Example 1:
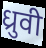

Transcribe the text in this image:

ध्रुवी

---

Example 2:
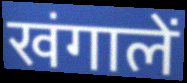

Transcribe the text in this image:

खंगालें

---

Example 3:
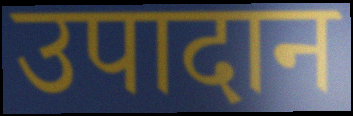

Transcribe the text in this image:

उपादान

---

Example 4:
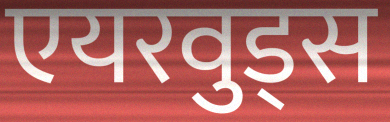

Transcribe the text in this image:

एयरवुड्स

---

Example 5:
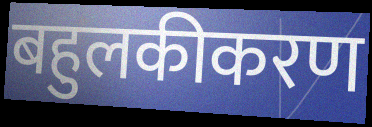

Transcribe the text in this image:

बहुलकीकरण